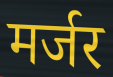
मर्जर